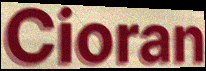
Cioran